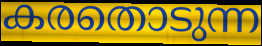
കരതൊടുന്ന